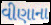
વીણાના